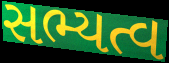
સભ્યત્વ